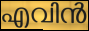
എവിൻ